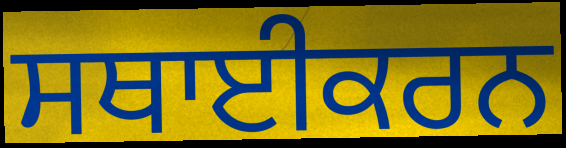
ਸਥਾਈਕਰਨ